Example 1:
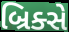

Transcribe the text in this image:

બ્રિક્સે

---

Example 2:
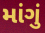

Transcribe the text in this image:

માંગું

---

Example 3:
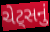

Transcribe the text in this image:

ચેટ્સનું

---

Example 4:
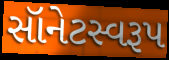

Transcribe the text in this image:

સૉનેટસ્વરૂપ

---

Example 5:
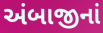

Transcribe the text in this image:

અંબાજીનાં